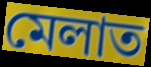
মেলাত